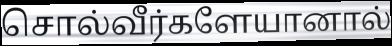
சொல்வீர்களேயானால்